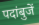
पदांबुजें